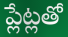
ప్లేట్లతో